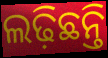
ଲଢ଼ିଛନ୍ତି